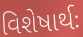
વિશેષાર્થઃ